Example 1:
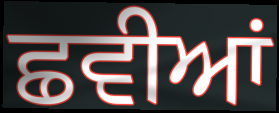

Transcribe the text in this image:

ਛਵੀਆਂ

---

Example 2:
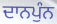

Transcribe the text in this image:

ਦਾਨਪੁੰਨ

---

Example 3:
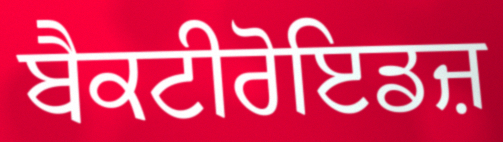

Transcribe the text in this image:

ਬੈਕਟੀਰੋਇਡਜ਼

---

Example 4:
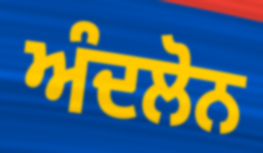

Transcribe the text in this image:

ਅੰਦਲੋਨ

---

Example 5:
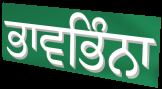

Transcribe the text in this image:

ਭਾਵਭਿੰਨਾ